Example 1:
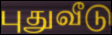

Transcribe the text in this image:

புதுவீடு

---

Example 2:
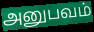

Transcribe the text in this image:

அனுபவம்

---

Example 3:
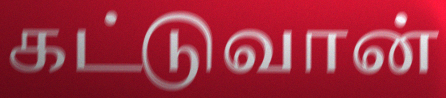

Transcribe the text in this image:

கட்டுவான்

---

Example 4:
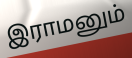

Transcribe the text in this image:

இராமனும்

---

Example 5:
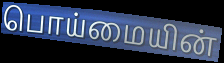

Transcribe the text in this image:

பொய்மையின்